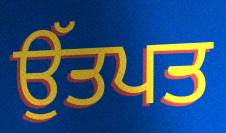
ਉੱਤਪਤ